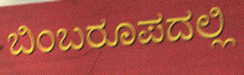
ಬಿಂಬರೂಪದಲ್ಲಿ